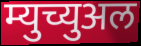
म्युच्युअल